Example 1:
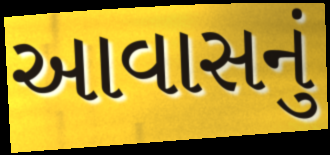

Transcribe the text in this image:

આવાસનું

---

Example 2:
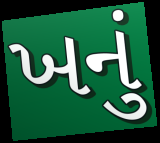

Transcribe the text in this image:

ખનું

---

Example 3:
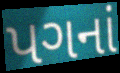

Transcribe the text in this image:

પગનાં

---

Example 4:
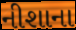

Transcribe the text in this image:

નીશાના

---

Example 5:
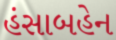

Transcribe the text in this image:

હંસાબહેન